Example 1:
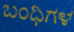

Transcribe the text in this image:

ಬಂಧಿಗಳ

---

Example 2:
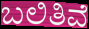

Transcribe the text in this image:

ಬಲಿತಿವೆ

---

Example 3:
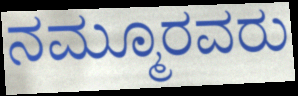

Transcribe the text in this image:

ನಮ್ಮೂರವರು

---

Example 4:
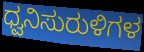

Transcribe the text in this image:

ಧ್ವನಿಸುರುಳಿಗಳ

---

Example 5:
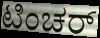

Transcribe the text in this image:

ಟಿಂಚರ್